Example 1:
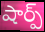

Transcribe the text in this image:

షార్ప్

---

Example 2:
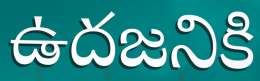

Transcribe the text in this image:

ఉదజనికి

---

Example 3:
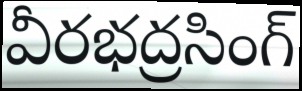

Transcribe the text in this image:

వీరభద్రసింగ్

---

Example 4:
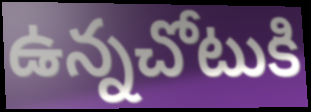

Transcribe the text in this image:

ఉన్నచోటుకి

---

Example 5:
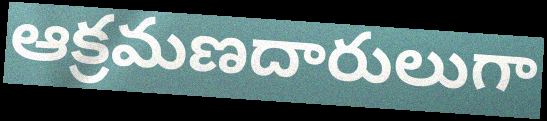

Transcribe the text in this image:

ఆక్రమణదారులుగా